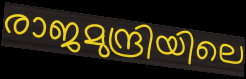
രാജമുന്ദ്രിയിലെ